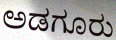
ಅಡಗೂರು